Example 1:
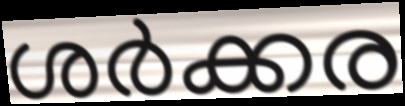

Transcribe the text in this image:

ശർക്കര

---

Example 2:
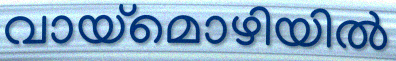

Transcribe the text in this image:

വായ്മൊഴിയിൽ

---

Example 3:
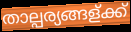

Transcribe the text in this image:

താല്പര്യങ്ങള്ക്ക്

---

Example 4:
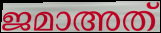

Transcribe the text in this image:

ജമാഅത്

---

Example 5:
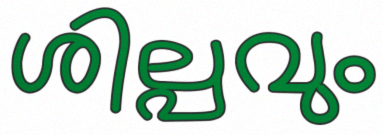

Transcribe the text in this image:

ശില്പവും